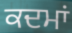
ਕਦਮਾਂ